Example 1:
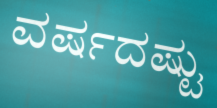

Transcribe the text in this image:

ವರ್ಷದಷ್ಟು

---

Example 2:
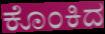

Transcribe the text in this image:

ಕೊಂಕಿದ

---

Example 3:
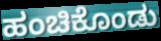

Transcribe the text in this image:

ಹಂಚಿಕೊಂಡು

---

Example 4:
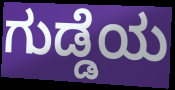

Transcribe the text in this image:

ಗುಡ್ಡೆಯ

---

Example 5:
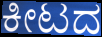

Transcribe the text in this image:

ಕೀಟದ